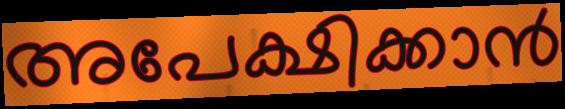
അപേക്ഷിക്കാൻ